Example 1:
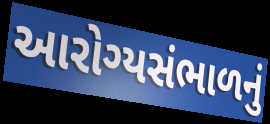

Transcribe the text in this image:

આરોગ્યસંભાળનું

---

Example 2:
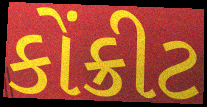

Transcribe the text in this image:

કોંક્રીટ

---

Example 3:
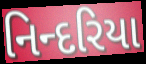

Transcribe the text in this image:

નિન્દરિયા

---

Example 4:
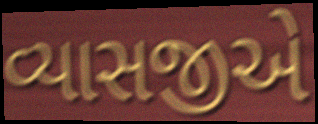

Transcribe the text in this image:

વ્યાસજીએ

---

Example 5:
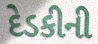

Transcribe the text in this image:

દેડકીની